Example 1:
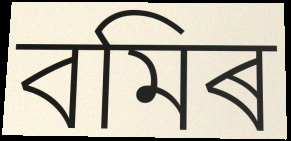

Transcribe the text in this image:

বমিৰ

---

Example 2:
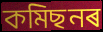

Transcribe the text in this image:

কমিছনৰ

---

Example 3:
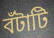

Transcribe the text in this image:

বঁটাটি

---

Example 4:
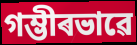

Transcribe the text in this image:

গম্ভীৰভাৱে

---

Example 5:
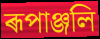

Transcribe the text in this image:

ৰূপাঞ্জলি